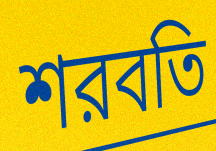
শরবতি